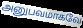
அனுபவமாகவே